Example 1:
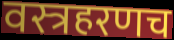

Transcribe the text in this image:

वस्त्रहरणच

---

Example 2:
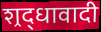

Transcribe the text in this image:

श्रद्धावादी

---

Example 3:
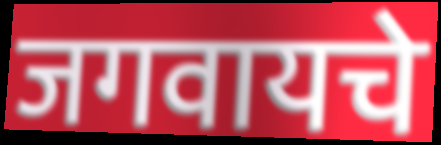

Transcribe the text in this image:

जगवायचे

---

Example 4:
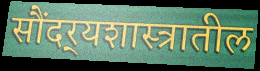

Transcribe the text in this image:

सौंदर्यशास्त्रातील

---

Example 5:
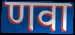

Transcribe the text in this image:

णवा